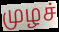
முழச்